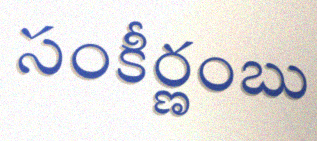
సంకీర్ణంబు